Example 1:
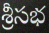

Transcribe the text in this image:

శ్రీసభ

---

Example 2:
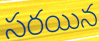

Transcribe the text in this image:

సరయిన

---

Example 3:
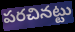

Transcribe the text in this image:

పరచినట్టు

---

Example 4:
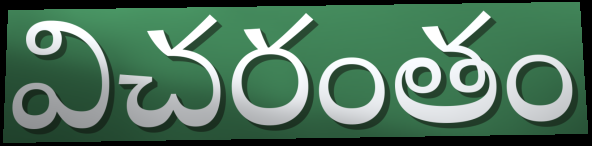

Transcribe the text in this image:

విచరంతం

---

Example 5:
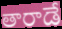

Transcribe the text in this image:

తారాడే